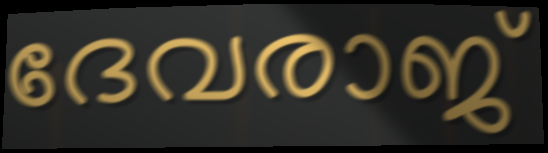
ദേവരാജ്